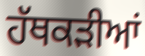
ਹੱਥਕੜੀਆਂ